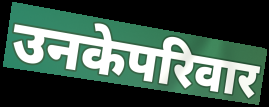
उनकेपरिवार